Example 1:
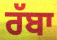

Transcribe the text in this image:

ਰੱਬਾ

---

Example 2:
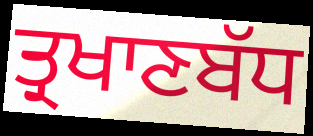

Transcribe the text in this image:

ਤ੍ਰਖਾਣਬੱਧ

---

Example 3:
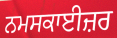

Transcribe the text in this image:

ਨਮਸਕਾਈਜ਼ਰ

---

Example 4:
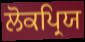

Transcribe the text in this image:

ਲੋਕਪ੍ਰਿਯ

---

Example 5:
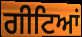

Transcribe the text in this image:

ਗੀਟਿਆਂ